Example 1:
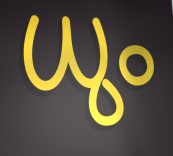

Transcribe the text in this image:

ധും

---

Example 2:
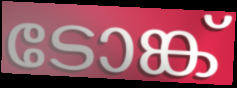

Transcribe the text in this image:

ടോങ്ക്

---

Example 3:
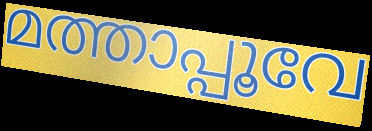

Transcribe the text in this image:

മത്താപ്പൂവേ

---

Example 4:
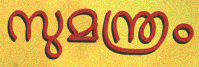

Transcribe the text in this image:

സുമന്ത്രം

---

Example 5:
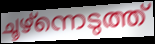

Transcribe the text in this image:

ചൂഴ്ന്നെടുത്ത്